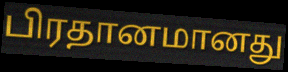
பிரதானமானது